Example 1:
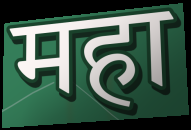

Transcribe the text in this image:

महा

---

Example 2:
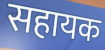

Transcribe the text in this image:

सहायक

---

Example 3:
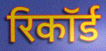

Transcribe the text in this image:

रिकॉर्ड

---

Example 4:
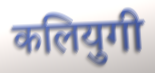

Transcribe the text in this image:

कलियुगी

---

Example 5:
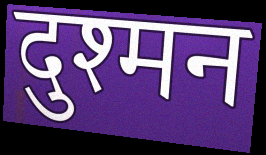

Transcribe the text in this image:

दुश्मन